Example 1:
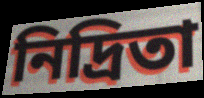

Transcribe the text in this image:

নিদ্রিতা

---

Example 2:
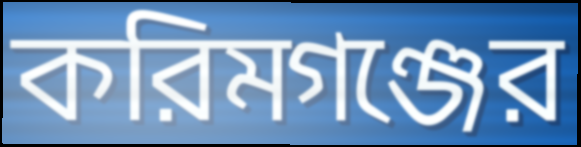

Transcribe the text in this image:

করিমগঞ্জের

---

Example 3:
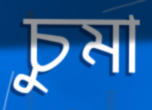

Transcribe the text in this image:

চুমা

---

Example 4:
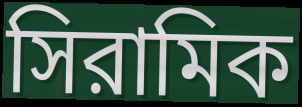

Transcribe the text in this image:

সিরামিক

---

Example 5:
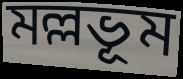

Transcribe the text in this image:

মল্লভূম